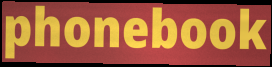
phonebook